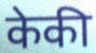
केकी